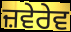
ਜ਼ਵੇਰੇਵ